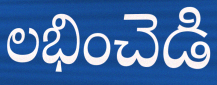
లభించెడి